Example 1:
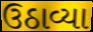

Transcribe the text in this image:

ઉઠાવ્યા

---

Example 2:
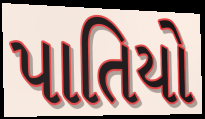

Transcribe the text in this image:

પાતિયો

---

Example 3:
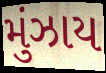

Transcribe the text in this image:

મુંઝાય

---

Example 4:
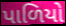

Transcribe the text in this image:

પાળિયો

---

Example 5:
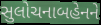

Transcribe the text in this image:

સુલોચનાબહેનને